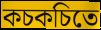
কচকচিতে